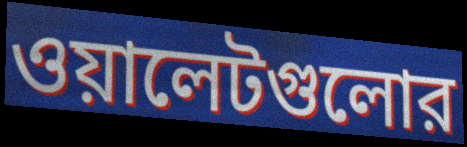
ওয়ালেটগুলোর